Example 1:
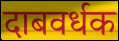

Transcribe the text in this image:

दाबवर्धक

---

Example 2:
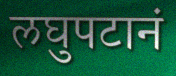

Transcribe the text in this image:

लघुपटानं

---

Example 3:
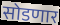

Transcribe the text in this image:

सोडणार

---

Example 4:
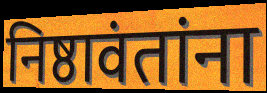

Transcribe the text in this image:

निष्ठावंतांना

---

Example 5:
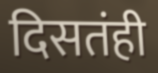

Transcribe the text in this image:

दिसतंही